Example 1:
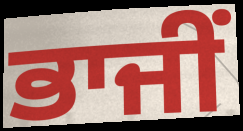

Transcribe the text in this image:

ਭਾਜੀਂ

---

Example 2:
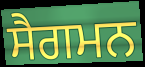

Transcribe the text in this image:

ਸੈਗਮਨ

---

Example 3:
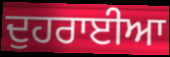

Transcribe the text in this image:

ਦੁਹਰਾਈਆ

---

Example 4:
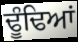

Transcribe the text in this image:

ਢੂੰਢਿਆਂ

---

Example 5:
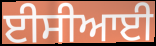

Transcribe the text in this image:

ਈਸੀਆਈ